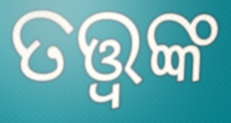
ତତ୍ତ୍ବଙ୍କ